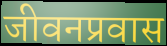
जीवनप्रवास